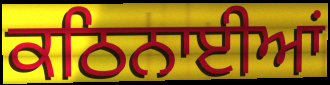
ਕਠਿਨਾਈਆਂ